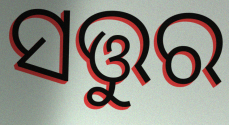
ସତ୍ତୁର